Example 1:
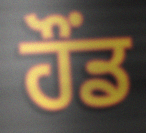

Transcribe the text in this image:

ਹੌਂਡ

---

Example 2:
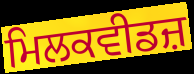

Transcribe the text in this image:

ਮਿਲਕਵੀਡਜ਼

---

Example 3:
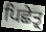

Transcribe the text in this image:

ਪਿਛੇਤ੍ਰ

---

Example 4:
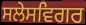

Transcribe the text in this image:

ਸਲੇਸਵਿਗਰ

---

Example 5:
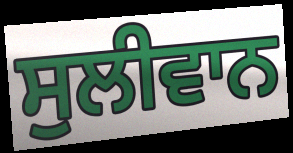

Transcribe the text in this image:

ਸੁਲੀਵਾਨ